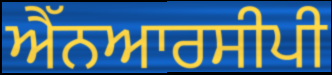
ਐੱਨਆਰਸੀਪੀ